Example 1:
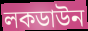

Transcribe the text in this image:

লকডাউন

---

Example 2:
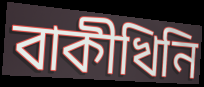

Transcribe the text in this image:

বাকীখিনি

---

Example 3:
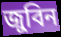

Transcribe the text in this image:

জুবিন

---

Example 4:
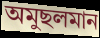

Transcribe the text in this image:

অমুছলমান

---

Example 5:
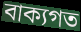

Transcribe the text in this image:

বাক্যগত